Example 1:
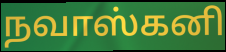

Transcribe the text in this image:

நவாஸ்கனி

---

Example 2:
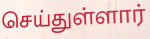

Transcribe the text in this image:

செய்துள்ளார்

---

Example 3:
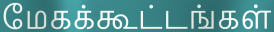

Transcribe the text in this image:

மேகக்கூட்டங்கள்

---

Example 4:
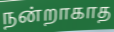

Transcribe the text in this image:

நன்றாகாத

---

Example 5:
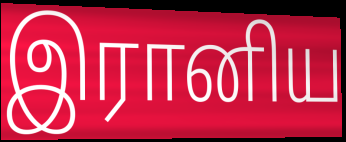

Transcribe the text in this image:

இரானிய